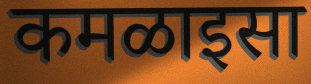
कमळाइसा